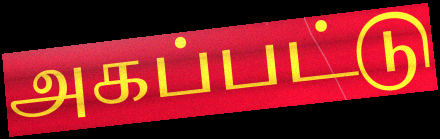
அகப்பட்டு